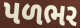
પળભર